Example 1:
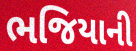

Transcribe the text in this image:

ભજિયાની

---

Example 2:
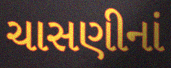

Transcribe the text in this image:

ચાસણીનાં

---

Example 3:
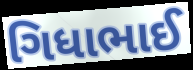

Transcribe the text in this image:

ગિધાભાઈ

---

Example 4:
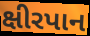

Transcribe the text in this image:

ક્ષીરપાન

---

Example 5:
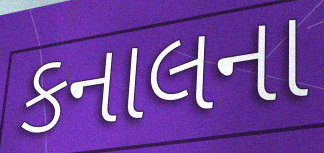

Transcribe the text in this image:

કનાલના